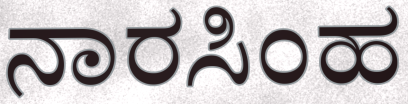
ನಾರಸಿಂಹ